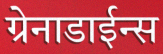
ग्रेनाडाईन्स